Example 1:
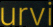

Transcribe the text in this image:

urvi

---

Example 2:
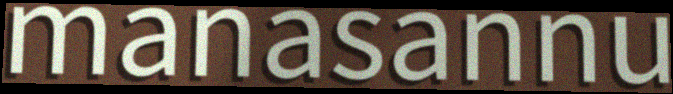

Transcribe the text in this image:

manasannu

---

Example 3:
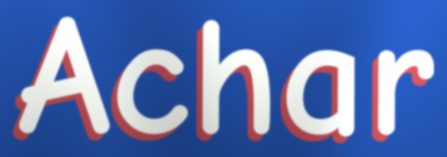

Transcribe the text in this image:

Achar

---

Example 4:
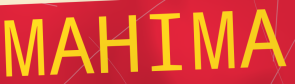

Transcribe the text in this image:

MAHIMA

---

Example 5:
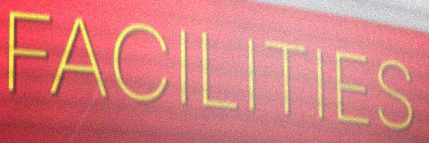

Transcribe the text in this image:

FACILITIES